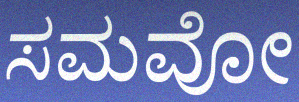
ಸಮವೋ